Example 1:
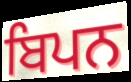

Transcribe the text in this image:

ਬਿਪਨ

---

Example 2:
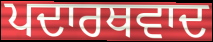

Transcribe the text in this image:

ਪਦਾਰਥਵਾਦ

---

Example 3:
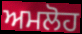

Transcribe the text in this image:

ਅਮਲੋਹ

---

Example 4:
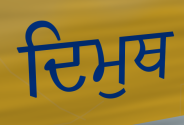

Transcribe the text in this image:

ਦਿਮੁਥ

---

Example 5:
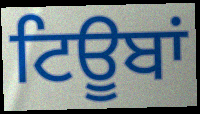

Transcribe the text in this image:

ਟਿਊਬਾਂ